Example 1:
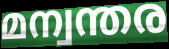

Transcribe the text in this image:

മന്വന്തര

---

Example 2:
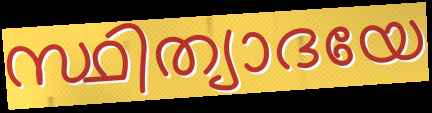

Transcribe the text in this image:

സ്ഥിത്യാദയേ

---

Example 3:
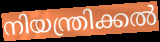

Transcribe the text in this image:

നിയന്ത്രിക്കൽ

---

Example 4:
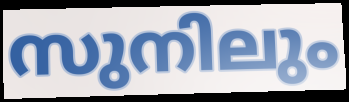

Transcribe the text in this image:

സുനിലും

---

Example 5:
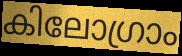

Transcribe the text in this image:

കിലോഗ്രാം